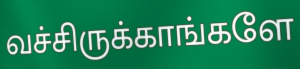
வச்சிருக்காங்களே